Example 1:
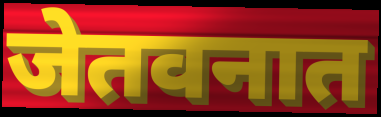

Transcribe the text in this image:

जेतवनात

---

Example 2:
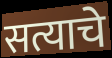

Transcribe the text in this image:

सत्याचे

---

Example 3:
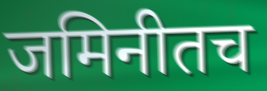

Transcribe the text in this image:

जमिनीतच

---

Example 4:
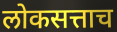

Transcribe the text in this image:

लोकसत्ताच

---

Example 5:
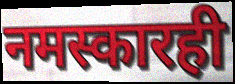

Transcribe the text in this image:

नमस्कारही